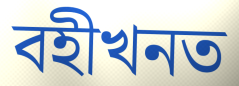
বহীখনত